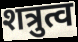
शत्रुत्व